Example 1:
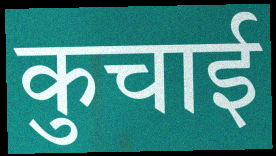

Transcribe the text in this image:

कुचाई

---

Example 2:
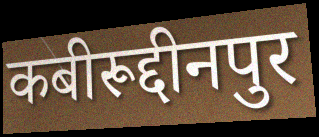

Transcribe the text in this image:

कबीरूद्दीनपुर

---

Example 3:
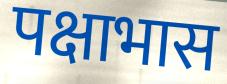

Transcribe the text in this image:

पक्षाभास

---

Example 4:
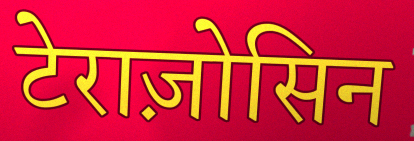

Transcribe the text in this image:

टेराज़ोसिन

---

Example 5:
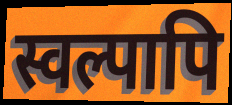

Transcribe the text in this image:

स्वल्पापि